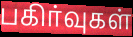
பகிர்வுகள்